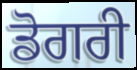
ਡੋਗਰੀ